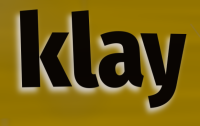
klay